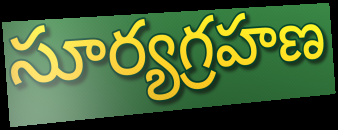
సూర్యగ్రహణ